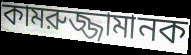
কামৰুজ্জামানক